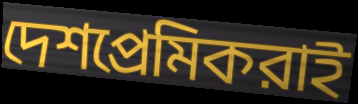
দেশপ্রেমিকরাই